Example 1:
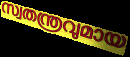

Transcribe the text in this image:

സ്വതന്ത്രവുമായ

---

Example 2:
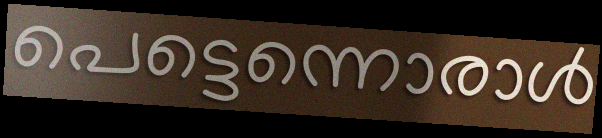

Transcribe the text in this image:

പെട്ടെന്നൊരാൾ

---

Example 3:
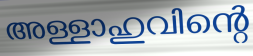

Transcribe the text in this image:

അള്ളാഹുവിന്റെ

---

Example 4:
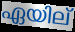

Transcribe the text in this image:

ഏയില്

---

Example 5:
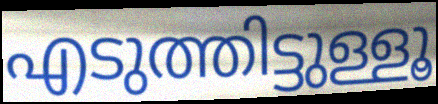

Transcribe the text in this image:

എടുത്തിട്ടുള്ളൂ